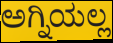
ಅಗ್ನಿಯಲ್ಲ